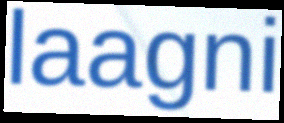
laagni